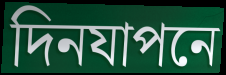
দিনযাপনে